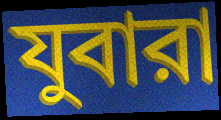
যুবারা